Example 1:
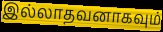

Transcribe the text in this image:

இல்லாதவனாகவும்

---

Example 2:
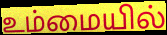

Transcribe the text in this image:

உம்மையில்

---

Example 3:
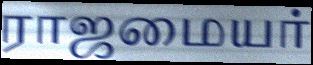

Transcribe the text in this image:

ராஜமையர்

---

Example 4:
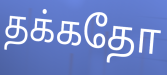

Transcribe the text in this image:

தக்கதோ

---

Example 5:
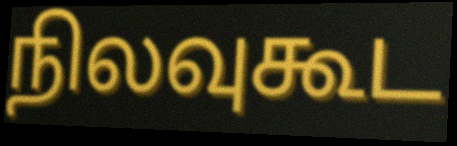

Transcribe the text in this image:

நிலவுகூட